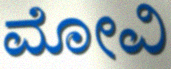
ಮೋವಿ